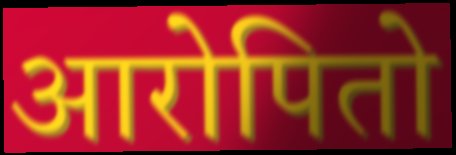
आरोपितो